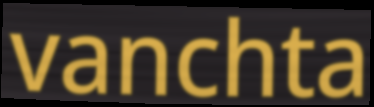
vanchta